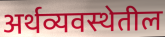
अर्थव्यवस्थेतील